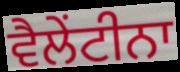
ਵੈਲੇਂਟੀਨਾ